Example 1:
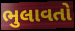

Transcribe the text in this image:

ભુલાવતો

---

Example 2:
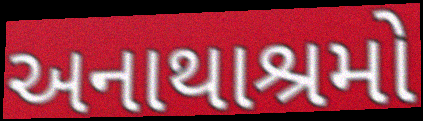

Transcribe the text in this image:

અનાથાશ્રમો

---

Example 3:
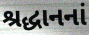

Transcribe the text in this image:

શ્રદ્ધાનનાં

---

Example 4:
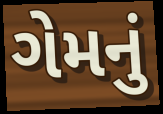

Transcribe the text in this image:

ગેમનું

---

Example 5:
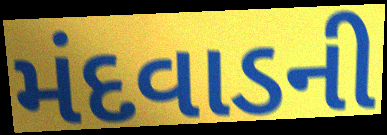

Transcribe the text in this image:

મંદવાડની